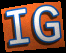
IG